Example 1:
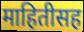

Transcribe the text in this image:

माहितीसह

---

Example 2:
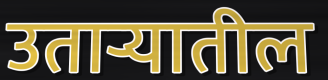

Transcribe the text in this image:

उताऱ्यातील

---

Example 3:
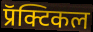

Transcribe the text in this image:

प्रॅक्टिकल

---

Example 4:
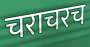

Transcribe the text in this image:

चराचरच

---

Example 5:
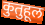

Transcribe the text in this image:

कुतुहूल